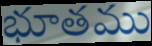
భూతము